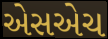
એસએચ